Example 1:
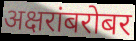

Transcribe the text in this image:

अक्षरांबरोबर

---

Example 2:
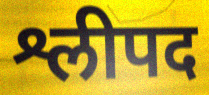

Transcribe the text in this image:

श्लीपद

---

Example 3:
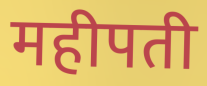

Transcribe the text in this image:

महीपती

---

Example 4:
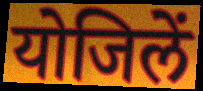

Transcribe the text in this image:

योजिलें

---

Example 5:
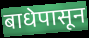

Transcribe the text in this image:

बाधेपासून